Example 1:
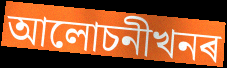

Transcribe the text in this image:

আলোচনীখনৰ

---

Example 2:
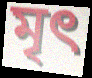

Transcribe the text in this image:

মৃৎ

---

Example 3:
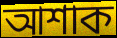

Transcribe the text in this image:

আশাক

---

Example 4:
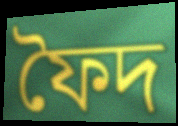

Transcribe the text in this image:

ফৈদ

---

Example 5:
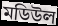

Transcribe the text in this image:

মডিউল